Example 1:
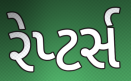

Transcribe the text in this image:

રેપ્ટર્સ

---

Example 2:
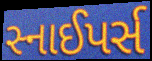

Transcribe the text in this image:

સ્નાઈપર્સ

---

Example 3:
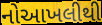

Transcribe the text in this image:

નોઆખલીથી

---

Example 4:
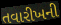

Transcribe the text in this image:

તવારીખની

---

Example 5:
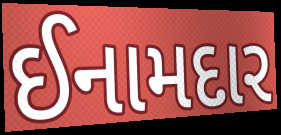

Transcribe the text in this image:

ઈનામદાર